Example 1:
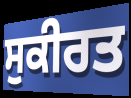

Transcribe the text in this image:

ਸੁਕੀਰਤ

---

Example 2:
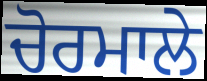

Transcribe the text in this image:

ਚੋਰਮਾਲੇ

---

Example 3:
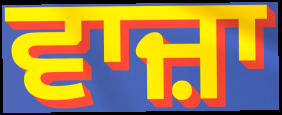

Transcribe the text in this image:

ਵਾਜ਼ਾ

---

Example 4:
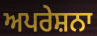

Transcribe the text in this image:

ਅਪਰੇਸ਼ਨਾ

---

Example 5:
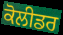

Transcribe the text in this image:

ਕੋਲੀਡਰ